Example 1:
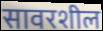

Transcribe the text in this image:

सावरशील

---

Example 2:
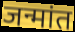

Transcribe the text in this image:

जन्मांत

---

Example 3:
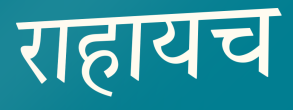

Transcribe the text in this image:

राहायच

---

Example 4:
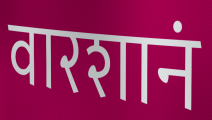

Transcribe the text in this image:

वारशानं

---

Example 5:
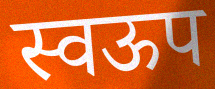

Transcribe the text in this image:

स्वऊप